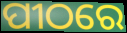
ପୀଠରେ